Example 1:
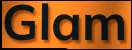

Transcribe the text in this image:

Glam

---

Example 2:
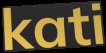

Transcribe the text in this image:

kati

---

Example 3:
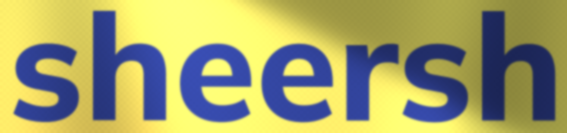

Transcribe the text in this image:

sheersh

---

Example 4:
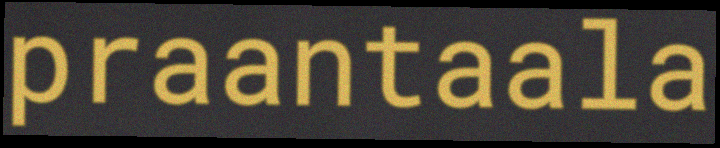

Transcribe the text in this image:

praantaala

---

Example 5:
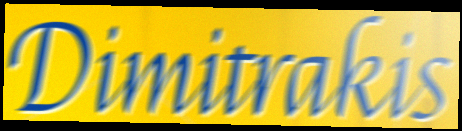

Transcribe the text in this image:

Dimitrakis